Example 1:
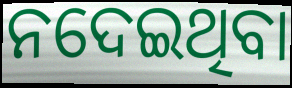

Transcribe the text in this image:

ନଦେଇଥିବା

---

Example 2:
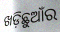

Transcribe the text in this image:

ଖଡ଼ିଛୁଆଁର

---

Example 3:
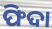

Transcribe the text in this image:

ଫିଦା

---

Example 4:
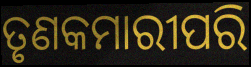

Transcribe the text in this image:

ତୃଣକମାରୀପରି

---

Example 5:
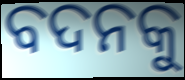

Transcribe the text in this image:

ବଦନକୁ